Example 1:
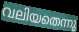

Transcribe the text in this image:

വലിയതെന്നു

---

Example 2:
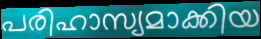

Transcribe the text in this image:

പരിഹാസ്യമാക്കിയ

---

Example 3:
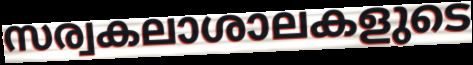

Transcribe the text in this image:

സര്വകലാശാലകളുടെ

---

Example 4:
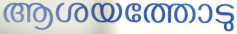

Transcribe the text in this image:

ആശയത്തോടു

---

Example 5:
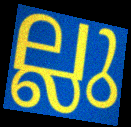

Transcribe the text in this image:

ല്ലു